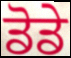
ਡੋਡੇ